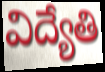
విద్యేతి